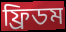
ফ্ৰিডম